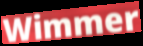
Wimmer